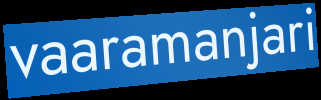
vaaramanjari